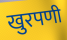
खुरपणी